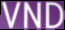
VND